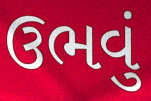
ઉભવું